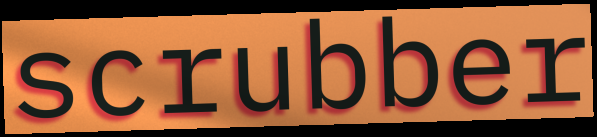
scrubber